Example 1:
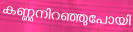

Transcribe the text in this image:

കണ്ണുനിറഞ്ഞുപോയി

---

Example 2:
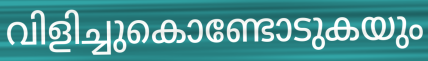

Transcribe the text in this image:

വിളിച്ചുകൊണ്ടോടുകയും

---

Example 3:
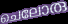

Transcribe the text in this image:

ചെലോരു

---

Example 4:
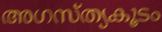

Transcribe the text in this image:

അഗസ്ത്യകൂടം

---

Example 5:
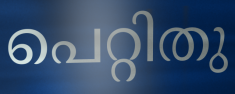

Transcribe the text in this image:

പെറ്റിതു